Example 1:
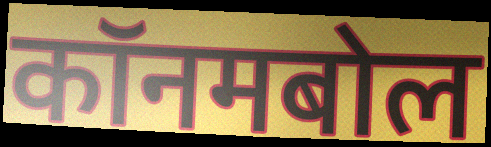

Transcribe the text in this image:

कॉनमबोल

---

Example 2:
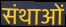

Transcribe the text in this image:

संथाओं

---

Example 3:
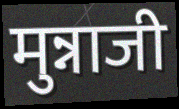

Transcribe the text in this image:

मुन्नाजी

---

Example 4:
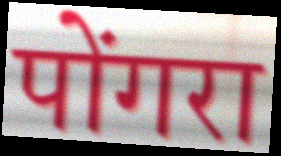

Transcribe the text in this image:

पोंगरा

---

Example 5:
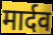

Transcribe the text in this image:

मार्दव